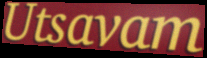
Utsavam